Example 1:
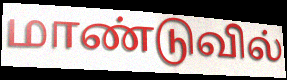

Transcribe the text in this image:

மாண்டுவில்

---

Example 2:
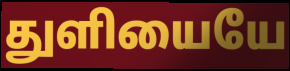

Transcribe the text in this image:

துளியையே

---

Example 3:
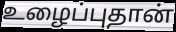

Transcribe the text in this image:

உழைப்புதான்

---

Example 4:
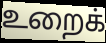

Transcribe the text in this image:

உறைக்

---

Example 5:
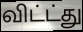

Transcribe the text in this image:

விட்ட்து